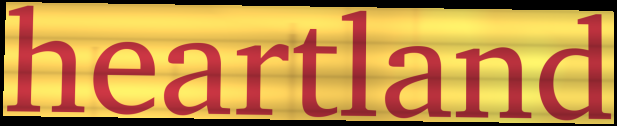
heartland